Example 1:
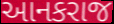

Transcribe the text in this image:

આનકરાજ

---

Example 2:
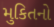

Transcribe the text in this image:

મુકિતનો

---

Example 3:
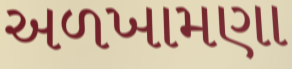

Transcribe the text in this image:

અળખામણા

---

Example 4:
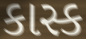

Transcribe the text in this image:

કાસ્ક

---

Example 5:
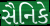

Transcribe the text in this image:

સૈનિકે